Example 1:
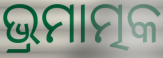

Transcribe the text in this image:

ଭ୍ରମାତ୍ମକ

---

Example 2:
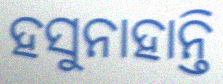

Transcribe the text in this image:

ହସୁନାହାନ୍ତି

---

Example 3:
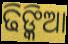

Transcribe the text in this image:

ଢିଙ୍କିଆ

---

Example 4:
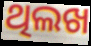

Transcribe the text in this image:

ଥିଲଖ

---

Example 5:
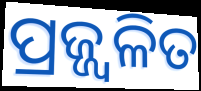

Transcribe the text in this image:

ପ୍ରଜ୍ଜ୍ବଳିତ